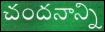
చందనాన్ని